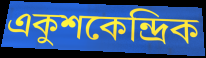
একুশকেন্দ্রিক